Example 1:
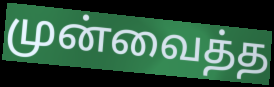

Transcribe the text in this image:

முன்வைத்த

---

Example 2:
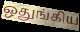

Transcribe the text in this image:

ஒதுங்கிய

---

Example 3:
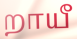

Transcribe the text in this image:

றாயீ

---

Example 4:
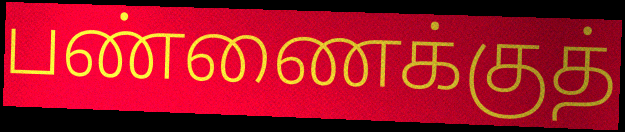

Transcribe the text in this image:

பண்ணைக்குத்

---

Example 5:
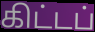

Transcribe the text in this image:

கிட்டப்